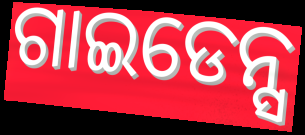
ଗାଇଡେନ୍ସ